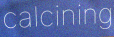
calcining